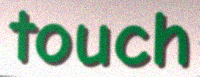
touch